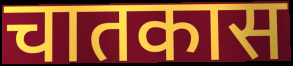
चातकास